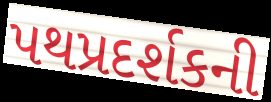
પથપ્રદર્શકની